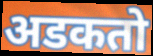
अडकतो